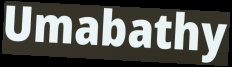
Umabathy